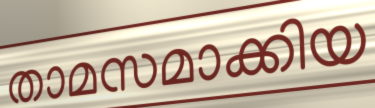
താമസമാക്കിയ